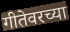
गीतेवरच्या